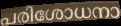
പരിശോധനാ